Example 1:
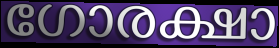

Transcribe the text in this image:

ഗോരക്ഷാ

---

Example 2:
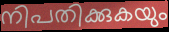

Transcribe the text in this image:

നിപതിക്കുകയും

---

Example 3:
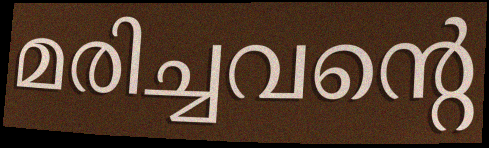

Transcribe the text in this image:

മരിച്ചവന്റെ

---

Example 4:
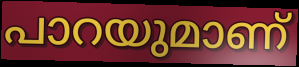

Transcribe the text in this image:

പാറയുമാണ്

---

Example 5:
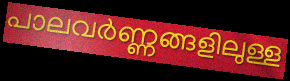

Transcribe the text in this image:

പാലവർണ്ണങ്ങളിലുള്ള